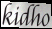
kidho